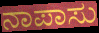
ನಾಪಾಸು